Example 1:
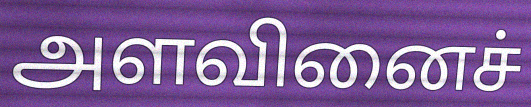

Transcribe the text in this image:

அளவினைச்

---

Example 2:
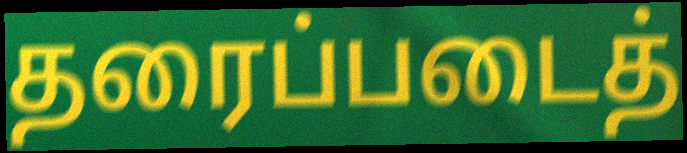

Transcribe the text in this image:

தரைப்படைத்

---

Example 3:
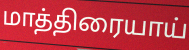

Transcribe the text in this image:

மாத்திரையாய்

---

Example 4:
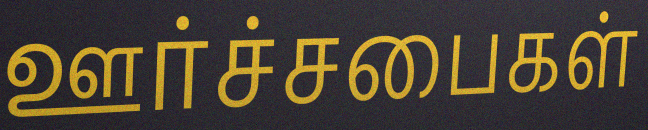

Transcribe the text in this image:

ஊர்ச்சபைகள்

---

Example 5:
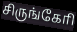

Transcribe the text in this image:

சிருங்கேரி